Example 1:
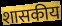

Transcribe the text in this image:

शासकीय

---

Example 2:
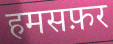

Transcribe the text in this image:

हमसफ़र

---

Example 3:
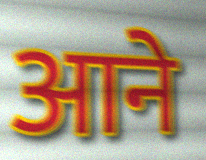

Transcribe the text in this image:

आने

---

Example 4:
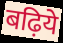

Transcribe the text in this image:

बढ़िये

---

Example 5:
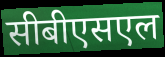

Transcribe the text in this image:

सीबीएसएल